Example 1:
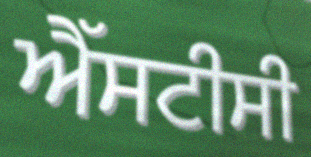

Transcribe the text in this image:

ਐੱਸਟੀਸੀ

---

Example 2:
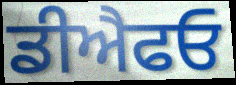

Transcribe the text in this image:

ਡੀਐਫਓ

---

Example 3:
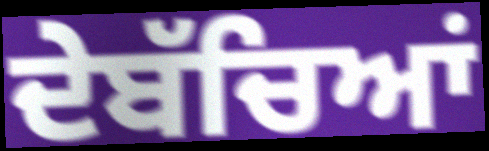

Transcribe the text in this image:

ਦੇਬੱਚਿਆਂ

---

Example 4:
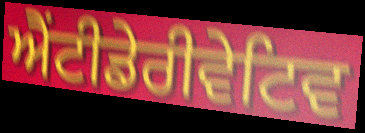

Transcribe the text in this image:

ਐਂਟੀਡੇਰੀਵੇਟਿਵ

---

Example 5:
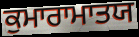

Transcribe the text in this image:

ਕੁਮਾਰਾਮਾਤਯ